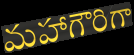
మహాగౌరిగా